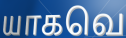
யாகவெ